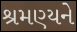
શ્રમણ્યને